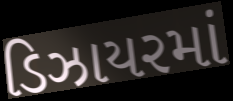
ડિઝાયરમાં